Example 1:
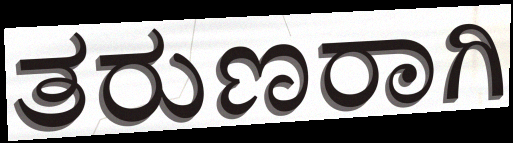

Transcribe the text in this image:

ತರುಣರಾಗಿ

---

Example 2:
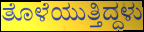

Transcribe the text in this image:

ತೊಳೆಯುತ್ತಿದ್ದಳು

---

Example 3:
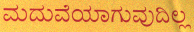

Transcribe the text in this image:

ಮದುವೆಯಾಗುವುದಿಲ್ಲ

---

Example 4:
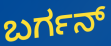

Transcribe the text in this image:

ಬರ್ಗನ್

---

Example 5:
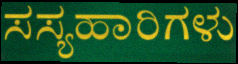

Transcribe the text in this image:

ಸಸ್ಯಹಾರಿಗಳು